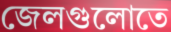
জেলগুলোতে